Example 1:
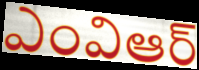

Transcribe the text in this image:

ఎంవిఆర్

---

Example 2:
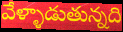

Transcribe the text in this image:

వేళ్ళాడుతున్నది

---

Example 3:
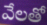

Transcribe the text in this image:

వేలతో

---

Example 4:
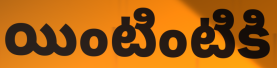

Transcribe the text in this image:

యింటింటికి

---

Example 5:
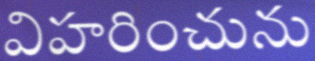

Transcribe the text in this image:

విహరించును